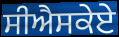
ਸੀਐਸਕੇਏ